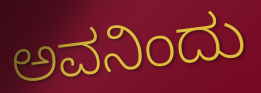
ಅವನಿಂದು